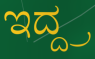
ಇದ್ದ್ರ